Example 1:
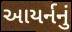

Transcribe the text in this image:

આયર્નનું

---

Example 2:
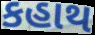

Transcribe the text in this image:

કહાથ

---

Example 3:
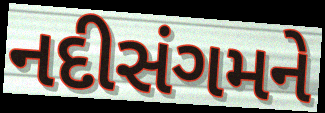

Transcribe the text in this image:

નદીસંગમને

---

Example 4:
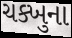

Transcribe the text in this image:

ચક્ખુના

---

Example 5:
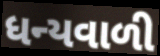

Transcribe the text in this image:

ધન્યવાળી